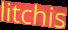
litchis